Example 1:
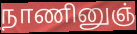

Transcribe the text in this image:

நாணினுஞ்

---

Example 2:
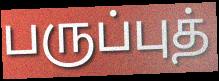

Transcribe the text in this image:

பருப்புத்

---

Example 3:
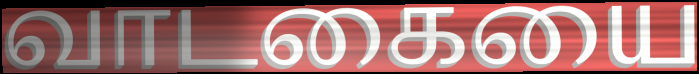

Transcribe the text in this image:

வாடகையை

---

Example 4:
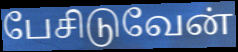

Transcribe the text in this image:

பேசிடுவேன்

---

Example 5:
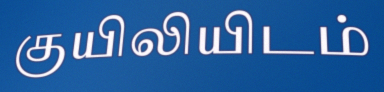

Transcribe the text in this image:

குயிலியிடம்